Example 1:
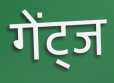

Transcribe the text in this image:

गेंट्ज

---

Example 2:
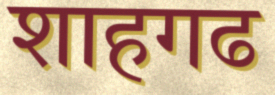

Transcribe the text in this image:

शाहगढ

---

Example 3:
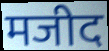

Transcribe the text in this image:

मजीद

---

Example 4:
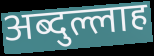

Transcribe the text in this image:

अब्दुल्लाह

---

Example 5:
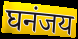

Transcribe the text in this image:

घनंजय